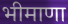
भीमाणा